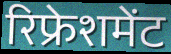
रिफ्रेशमेंट